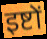
इष्टों